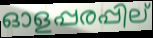
ഓളപ്പരപ്പില്